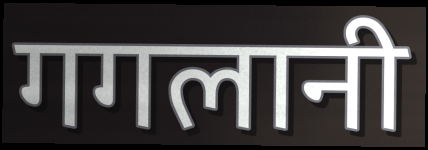
गगलानी